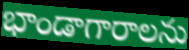
భాండాగారాలను